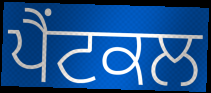
ਪੈਂਟਕਲ